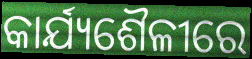
କାର୍ଯ୍ୟଶୈଳୀରେ